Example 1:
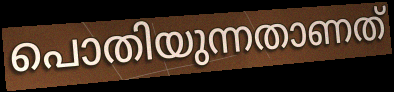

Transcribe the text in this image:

പൊതിയുന്നതാണത്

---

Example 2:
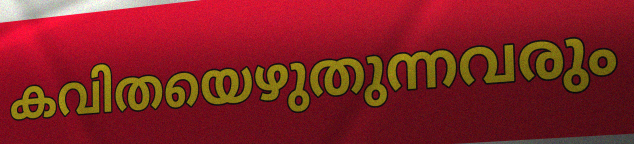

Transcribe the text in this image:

കവിതയെഴുതുന്നവരും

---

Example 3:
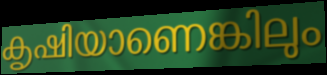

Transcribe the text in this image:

കൃഷിയാണെങ്കിലും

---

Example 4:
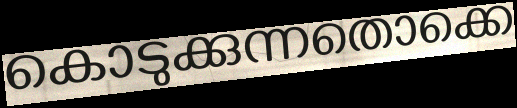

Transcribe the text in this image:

കൊടുക്കുന്നതൊക്കെ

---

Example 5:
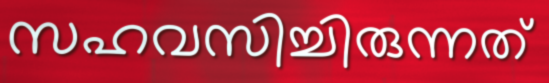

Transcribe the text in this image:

സഹവസിച്ചിരുന്നത്